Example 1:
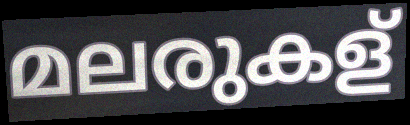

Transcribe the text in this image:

മലരുകള്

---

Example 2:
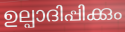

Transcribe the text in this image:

ഉല്പാദിപ്പിക്കും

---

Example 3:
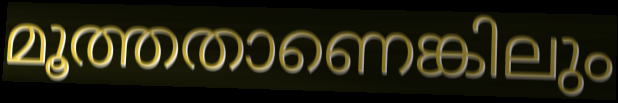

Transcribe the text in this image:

മൂത്തതാണെങ്കിലും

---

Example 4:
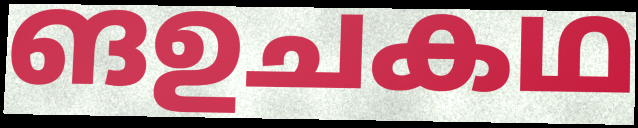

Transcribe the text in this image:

ങഉചകഥ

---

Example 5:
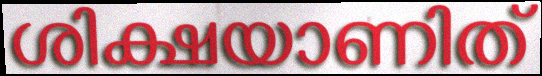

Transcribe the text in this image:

ശിക്ഷയാണിത്